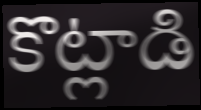
కొట్లాడి